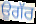
ਉਗੱਰ